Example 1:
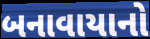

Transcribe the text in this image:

બનાવાયાનો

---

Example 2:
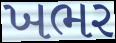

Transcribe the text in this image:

ખભર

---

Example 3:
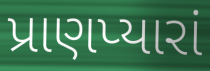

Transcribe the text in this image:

પ્રાણપ્યારાં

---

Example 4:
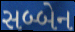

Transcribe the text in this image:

સબ્બેન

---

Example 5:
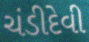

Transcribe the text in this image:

ચંડીદેવી